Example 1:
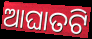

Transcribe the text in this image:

ଆଘାତଟି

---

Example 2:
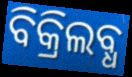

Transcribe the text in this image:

ବିକ୍ରିଲବ୍ଧ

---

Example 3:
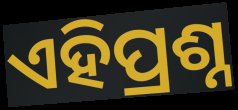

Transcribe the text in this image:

ଏହିପ୍ରଶ୍ନ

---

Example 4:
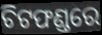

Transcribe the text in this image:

ଚିଟଫଣ୍ଡରେ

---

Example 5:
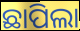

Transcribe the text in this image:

ଛାପିଲା